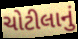
ચોટીલાનું